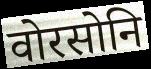
वोरसोनि